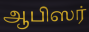
ஆபிஸர்